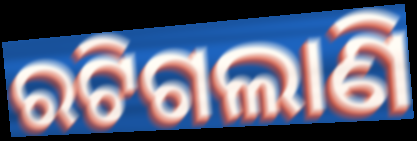
ରଟିଗଲାଣି